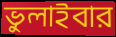
ভুলাইবার